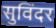
सुविंदर